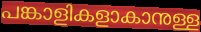
പങ്കാളികളാകാനുള്ള